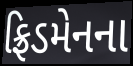
ફ્રિડમેનના